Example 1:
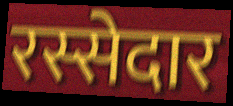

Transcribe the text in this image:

रस्सेदार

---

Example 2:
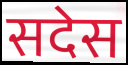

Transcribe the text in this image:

सदेस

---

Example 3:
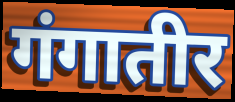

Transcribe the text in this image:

गंगातीर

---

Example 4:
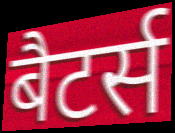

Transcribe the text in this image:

बैटर्स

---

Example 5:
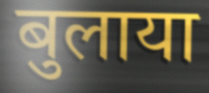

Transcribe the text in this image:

बुलाया